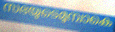
സഭയുടെമുമ്പാകെ